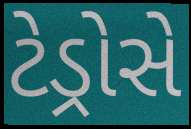
ટેડ્રોસે